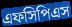
এফসিপিএস